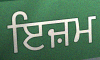
ਇਜ਼ਮ